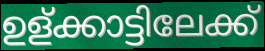
ഉള്ക്കാട്ടിലേക്ക്